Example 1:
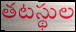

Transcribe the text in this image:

తటస్థుల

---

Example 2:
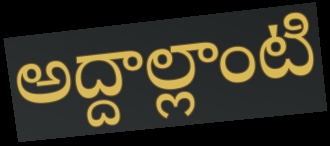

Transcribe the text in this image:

అద్దాల్లాంటి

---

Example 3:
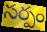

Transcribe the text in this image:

సర్పం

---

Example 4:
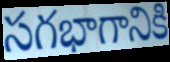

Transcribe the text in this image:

సగభాగానికి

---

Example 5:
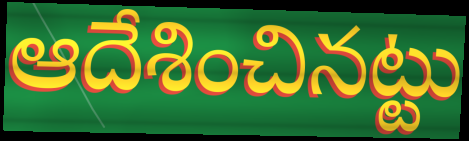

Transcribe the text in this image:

ఆదేశించినట్టు